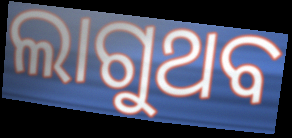
ଲାଗୁଥବ